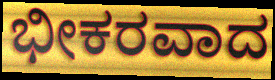
ಭೀಕರವಾದ